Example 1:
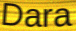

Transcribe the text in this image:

Dara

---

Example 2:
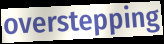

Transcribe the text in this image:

overstepping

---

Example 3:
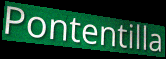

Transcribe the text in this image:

Pontentilla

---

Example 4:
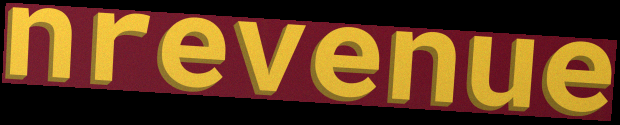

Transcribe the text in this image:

nrevenue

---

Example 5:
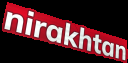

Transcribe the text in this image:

nirakhtan